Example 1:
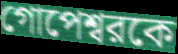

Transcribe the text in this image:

গোপেশ্বরকে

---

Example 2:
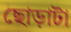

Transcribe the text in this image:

ছোড়াটা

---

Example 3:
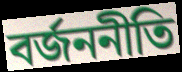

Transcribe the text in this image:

বর্জননীতি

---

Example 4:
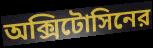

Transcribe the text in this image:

অক্সিটোসিনের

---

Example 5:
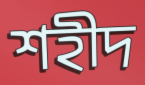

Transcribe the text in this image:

শহীদ